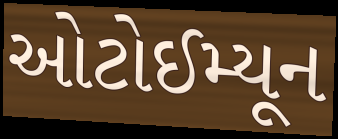
ઓટોઈમ્યૂન